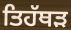
ਤਿਹੱਥੜ